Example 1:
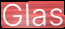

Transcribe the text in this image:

Glas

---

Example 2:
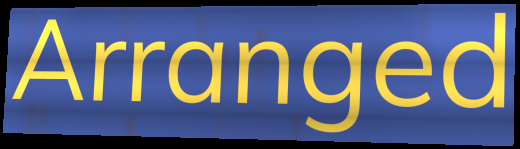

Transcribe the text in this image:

Arranged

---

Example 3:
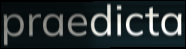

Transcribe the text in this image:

praedicta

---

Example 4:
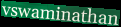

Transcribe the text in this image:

vswaminathan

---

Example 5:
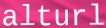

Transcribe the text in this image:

alturl